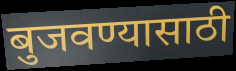
बुजवण्यासाठी